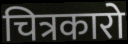
चित्रकारो